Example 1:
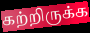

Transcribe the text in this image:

கற்றிருக்க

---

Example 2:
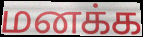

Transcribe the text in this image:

மனக்க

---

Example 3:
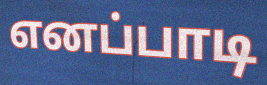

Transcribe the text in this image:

எனப்பாடி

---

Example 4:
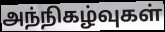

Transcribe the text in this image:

அந்நிகழ்வுகள்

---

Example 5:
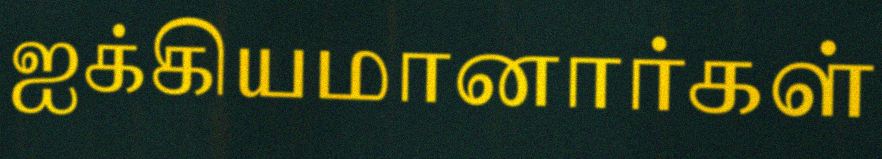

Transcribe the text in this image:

ஐக்கியமானார்கள்